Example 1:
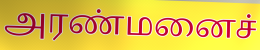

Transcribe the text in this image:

அரண்மனைச்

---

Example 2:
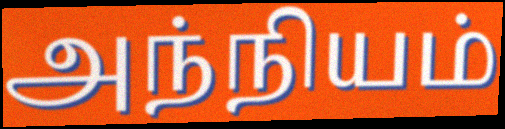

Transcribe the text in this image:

அந்நியம்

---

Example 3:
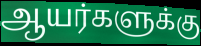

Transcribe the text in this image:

ஆயர்களுக்கு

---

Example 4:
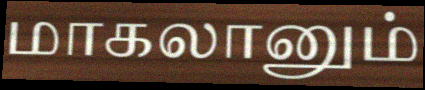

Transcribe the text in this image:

மாகலானும்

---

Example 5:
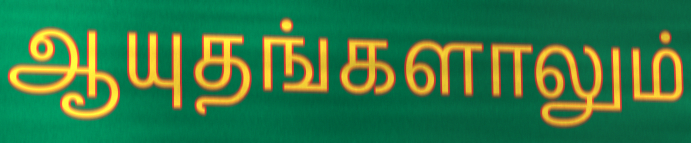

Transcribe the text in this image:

ஆயுதங்களாலும்